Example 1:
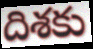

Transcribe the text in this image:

దిశకు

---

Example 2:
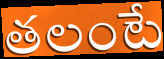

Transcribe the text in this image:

తలంటే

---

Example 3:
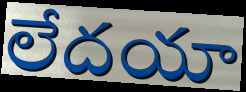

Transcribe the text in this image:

లేదయా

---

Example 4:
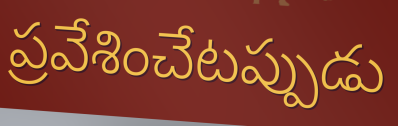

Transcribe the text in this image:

ప్రవేశించేటప్పుడు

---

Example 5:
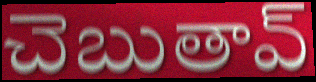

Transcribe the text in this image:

చెబుతావ్